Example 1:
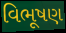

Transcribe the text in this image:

વિભૂષણ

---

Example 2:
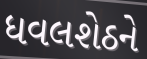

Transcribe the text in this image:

ધવલશેઠને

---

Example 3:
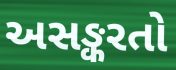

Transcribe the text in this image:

અસઙ્કરતો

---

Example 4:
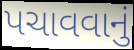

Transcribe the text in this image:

પચાવવાનું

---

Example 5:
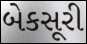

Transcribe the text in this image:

બેકસૂરી